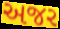
અજર